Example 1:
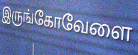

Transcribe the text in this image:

இருங்கோவேளை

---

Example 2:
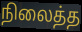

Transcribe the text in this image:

நிலைத்த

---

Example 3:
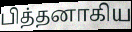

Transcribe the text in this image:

பித்தனாகிய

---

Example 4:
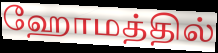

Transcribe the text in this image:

ஹோமத்தில்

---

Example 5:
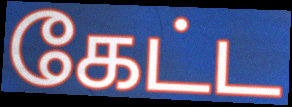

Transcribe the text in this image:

கேட்ட